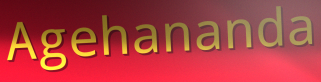
Agehananda